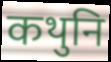
कथुनि